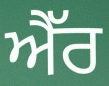
ਐੱਰ